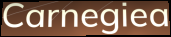
Carnegiea